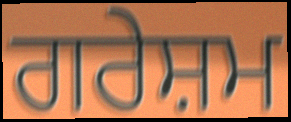
ਗਰੇਸ਼ਮ